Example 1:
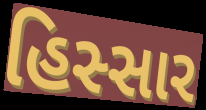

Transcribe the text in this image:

હિસ્સાર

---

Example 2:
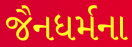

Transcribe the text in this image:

જૈનધર્મના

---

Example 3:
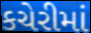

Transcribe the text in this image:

કચેરીમાં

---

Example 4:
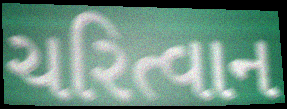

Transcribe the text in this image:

ચરિત્વાન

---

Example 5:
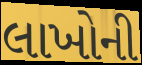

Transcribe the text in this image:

લાખોની